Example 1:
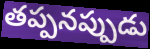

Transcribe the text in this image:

తప్పనప్పుడు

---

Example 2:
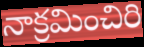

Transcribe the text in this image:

నాక్రమించిరి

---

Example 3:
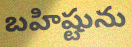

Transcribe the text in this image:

బహిష్టును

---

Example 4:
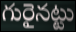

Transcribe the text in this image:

గురైనట్టు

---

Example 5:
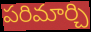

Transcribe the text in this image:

పరిమార్చి